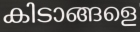
കിടാങ്ങളെ